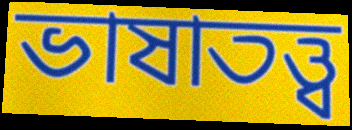
ভাষাতত্ত্ব